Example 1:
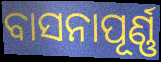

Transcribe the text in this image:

ବାସନାପୂର୍ଣ୍ଣ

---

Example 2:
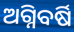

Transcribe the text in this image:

ଅଗ୍ନିବର୍ଷି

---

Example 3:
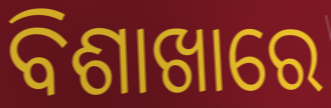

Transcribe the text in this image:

ବିଶାଖାରେ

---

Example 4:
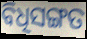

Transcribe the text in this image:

ବିଧିସଙ୍ଗତ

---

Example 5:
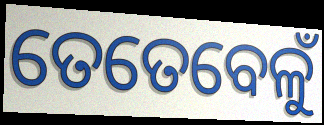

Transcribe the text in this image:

ତେତେବେଳୁଁ